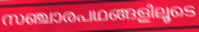
സഞ്ചാരപഥങ്ങളിലൂടെ